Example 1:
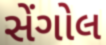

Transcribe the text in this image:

સેંગોલ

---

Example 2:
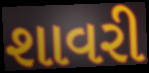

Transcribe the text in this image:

શાવરી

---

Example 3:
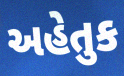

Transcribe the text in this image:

અહેતુક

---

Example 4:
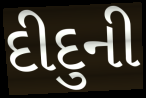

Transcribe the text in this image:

દીદુની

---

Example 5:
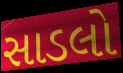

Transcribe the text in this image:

સાડલો